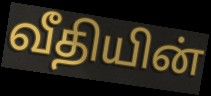
வீதியின்